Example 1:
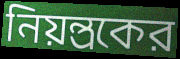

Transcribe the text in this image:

নিয়ন্ত্রকের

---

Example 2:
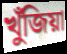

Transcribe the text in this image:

খুঁজিয়া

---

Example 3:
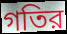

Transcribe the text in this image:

গতির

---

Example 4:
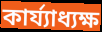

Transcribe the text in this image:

কার্য্যাধ্যক্ষ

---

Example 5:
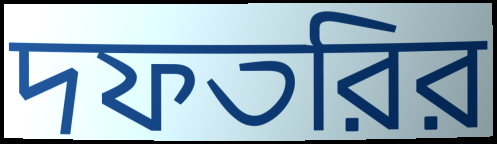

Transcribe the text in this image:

দফতরির